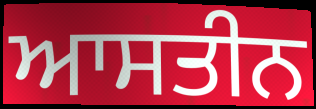
ਆਸਤੀਨ